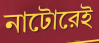
নাটোরেই